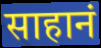
साहानं